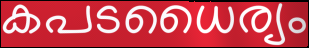
കപടധൈര്യം